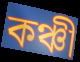
কঞ্চী